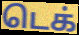
டெக்